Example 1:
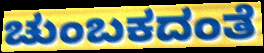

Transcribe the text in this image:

ಚುಂಬಕದಂತೆ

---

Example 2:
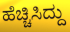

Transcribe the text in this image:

ಹೆಚ್ಚಿಸಿದ್ದು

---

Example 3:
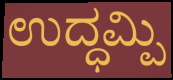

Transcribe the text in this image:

ಉದ್ಧಮ್ಪಿ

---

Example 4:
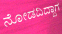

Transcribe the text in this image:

ನೋಡದಿದ್ದಾಗ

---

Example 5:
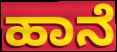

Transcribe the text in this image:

ಹಾನೆ